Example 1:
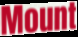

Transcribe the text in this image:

Mount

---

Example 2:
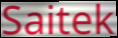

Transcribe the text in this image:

Saitek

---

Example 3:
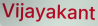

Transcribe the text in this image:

Vijayakant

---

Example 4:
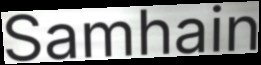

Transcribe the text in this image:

Samhain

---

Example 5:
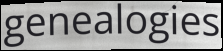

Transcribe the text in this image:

genealogies